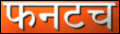
फनटच